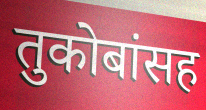
तुकोबांसह